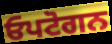
ਓਪਟੋਗਨ